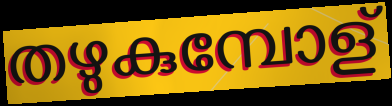
തഴുകുമ്പോള്